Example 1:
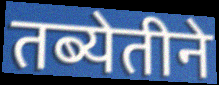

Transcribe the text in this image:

तब्येतीने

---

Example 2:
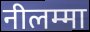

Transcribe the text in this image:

नीलम्मा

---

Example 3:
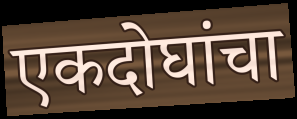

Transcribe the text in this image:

एकदोघांचा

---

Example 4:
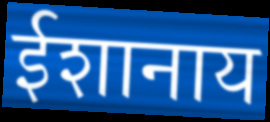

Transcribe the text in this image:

ईशानाय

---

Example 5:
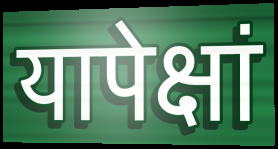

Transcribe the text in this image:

यापेक्षां